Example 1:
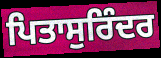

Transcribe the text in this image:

ਪਿਤਾਸੁਰਿੰਦਰ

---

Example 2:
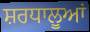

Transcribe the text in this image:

ਸ਼ਰਧਾਲੂਆਂ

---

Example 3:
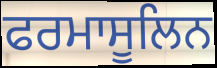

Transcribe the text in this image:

ਫਰਮਾਸੂਲਿਨ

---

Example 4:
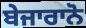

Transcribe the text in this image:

ਬੇਜਾਰਾਨੋ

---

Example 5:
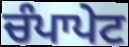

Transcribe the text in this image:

ਚੰਪਾਪੇਟ